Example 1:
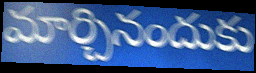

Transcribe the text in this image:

మార్చినందుకు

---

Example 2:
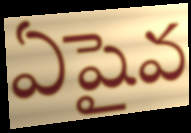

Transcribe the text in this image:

ఏషైవ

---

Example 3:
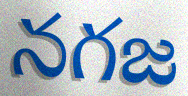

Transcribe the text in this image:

నగజ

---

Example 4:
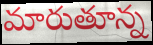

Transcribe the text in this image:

మారుతూన్న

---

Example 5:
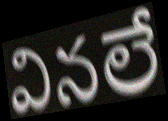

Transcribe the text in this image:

వినలే